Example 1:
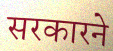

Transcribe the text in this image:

सरकारने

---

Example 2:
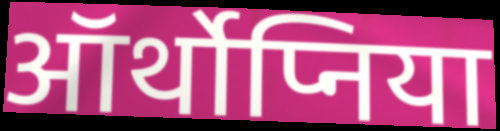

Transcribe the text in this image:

ऑर्थोप्निया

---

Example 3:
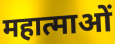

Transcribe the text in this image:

महात्माओं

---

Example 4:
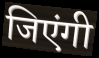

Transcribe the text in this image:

जिएंगी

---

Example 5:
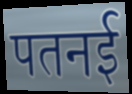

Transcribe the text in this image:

पतनई